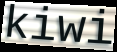
kiwi